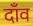
दाँव